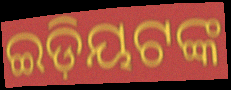
ଇଡ଼ିୟଟଙ୍କ